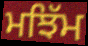
ਮਝਿੱਮ